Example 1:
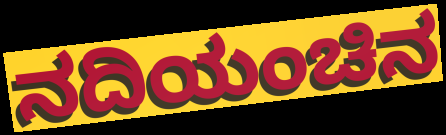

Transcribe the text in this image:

ನದಿಯಂಚಿನ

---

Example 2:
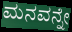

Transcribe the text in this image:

ಮನವನ್ನೇ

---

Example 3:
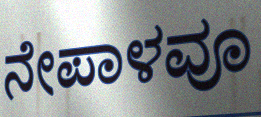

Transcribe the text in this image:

ನೇಪಾಳವೂ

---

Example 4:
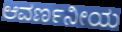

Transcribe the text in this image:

ಆವರ್ಣನೀಯ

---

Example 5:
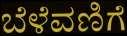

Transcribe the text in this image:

ಬೆಳೆವಣಿಗೆ